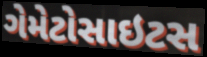
ગેમેટોસાઇટસ